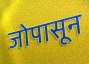
जोपासून